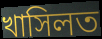
খাসিলত